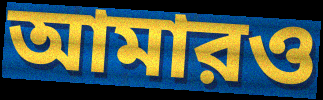
আমারও